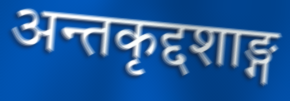
अन्तकृद्दशाङ्ग